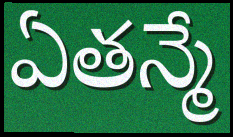
ఏతన్మే